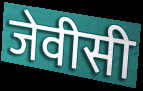
जेवीसी